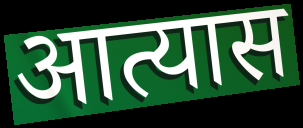
आत्यास